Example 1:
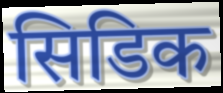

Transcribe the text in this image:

सिडिक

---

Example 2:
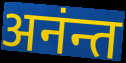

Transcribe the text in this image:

अनंन्त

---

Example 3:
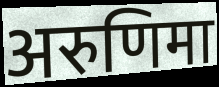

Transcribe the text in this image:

अरुणिमा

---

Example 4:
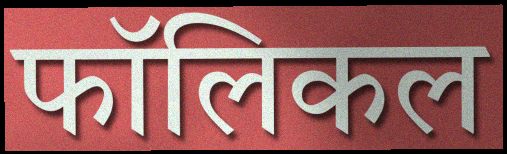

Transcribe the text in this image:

फॉलिकल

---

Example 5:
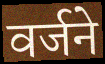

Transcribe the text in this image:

वर्जने